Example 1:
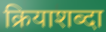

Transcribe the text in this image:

क्रियाशब्दा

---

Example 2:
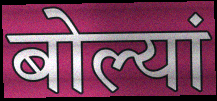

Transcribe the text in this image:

बोल्यां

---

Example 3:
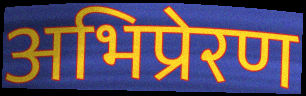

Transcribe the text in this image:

अभिप्रेरण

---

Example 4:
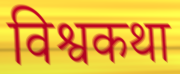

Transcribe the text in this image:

विश्वकथा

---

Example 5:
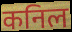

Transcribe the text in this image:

कनिल